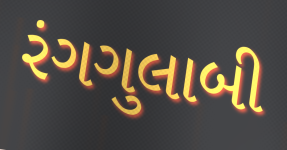
રંગગુલાબી